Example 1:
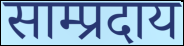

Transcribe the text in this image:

साम्प्रदाय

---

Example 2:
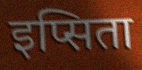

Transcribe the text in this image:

इप्सिता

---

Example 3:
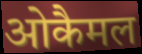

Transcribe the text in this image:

ओकैमल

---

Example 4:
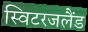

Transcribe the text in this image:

स्विटरजलैंड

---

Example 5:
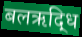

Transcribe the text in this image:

बलऋद्धि